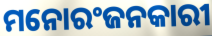
ମନୋରଂଜନକାରୀ